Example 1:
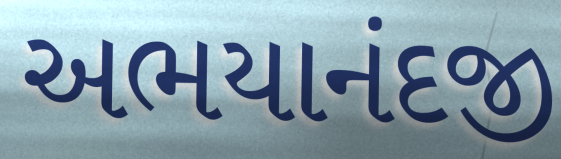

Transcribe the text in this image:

અભયાનંદજી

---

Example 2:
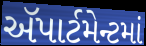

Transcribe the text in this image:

ઍપાર્ટમેન્ટમાં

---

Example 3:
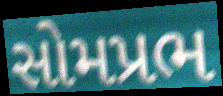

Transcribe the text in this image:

સોમપ્રભ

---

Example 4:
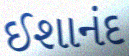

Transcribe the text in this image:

ઈશાનંદ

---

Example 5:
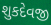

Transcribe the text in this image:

શુકદેવજી